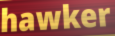
hawker